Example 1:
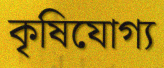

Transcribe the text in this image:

কৃষিযোগ্য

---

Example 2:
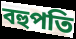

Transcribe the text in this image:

বহুপতি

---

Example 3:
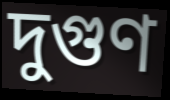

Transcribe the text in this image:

দুগুণ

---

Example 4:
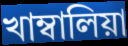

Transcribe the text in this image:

খাম্বালিয়া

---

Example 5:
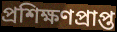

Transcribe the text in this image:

প্ৰশিক্ষণপ্ৰাপ্ত